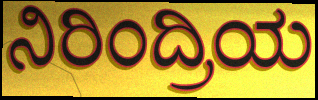
ನಿರಿಂದ್ರಿಯ